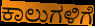
ಕಾಲುಗಳಿಗೆ